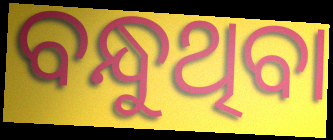
ବନ୍ଧୁଥିବା